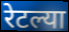
रेटल्या